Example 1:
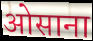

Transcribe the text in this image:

ओसाना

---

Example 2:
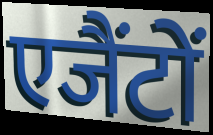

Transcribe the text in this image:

एजैंटों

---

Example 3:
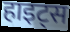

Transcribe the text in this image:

हाइट्स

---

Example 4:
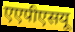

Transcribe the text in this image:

एएपीएसयू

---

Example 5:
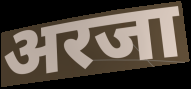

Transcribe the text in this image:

अरजा